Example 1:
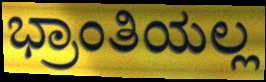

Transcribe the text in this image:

ಭ್ರಾಂತಿಯಲ್ಲ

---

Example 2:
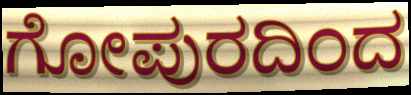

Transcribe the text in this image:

ಗೋಪುರದಿಂದ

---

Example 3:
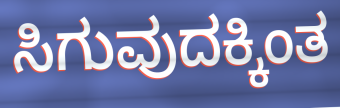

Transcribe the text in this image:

ಸಿಗುವುದಕ್ಕಿಂತ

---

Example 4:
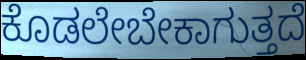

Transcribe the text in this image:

ಕೊಡಲೇಬೇಕಾಗುತ್ತದೆ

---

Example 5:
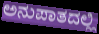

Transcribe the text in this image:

ಅನುಪಾತದಲ್ಲಿ